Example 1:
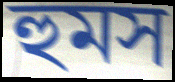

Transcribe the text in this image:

হুমস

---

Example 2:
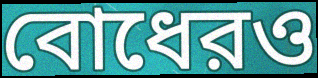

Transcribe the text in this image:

বোধেরও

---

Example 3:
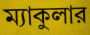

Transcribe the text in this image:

ম্যাকুলার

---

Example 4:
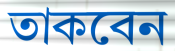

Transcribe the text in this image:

তাকবেন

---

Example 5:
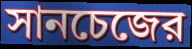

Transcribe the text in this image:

সানচেজের